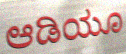
ಆಡಿಯೂ